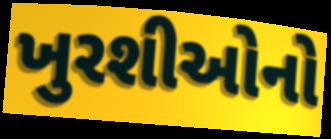
ખુરશીઓનો